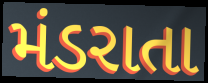
મંડરાતા